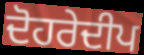
ਦੋਹਰੇਦੀਪ